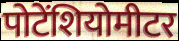
पोटेंशियोमीटर